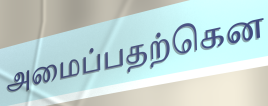
அமைப்பதற்கென